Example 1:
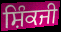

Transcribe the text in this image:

ਸ਼ਿੰਕਜੀ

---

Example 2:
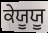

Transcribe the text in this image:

ਕੇਯੂਯੂ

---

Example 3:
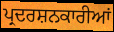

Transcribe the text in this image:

ਪ੍ਰਦਰਸ਼ਨਕਾਰੀਆਂ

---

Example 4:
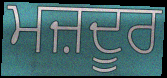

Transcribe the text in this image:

ਮਜ਼ਦੂਰ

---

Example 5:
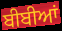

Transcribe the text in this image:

ਬੀਬੀਆਂ